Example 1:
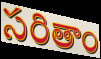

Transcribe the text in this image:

సరితాం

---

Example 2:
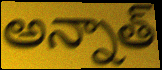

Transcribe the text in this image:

అన్నాత్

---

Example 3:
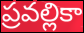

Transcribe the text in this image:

ప్రవల్లికా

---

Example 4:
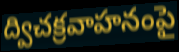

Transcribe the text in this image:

ద్విచక్రవాహనంపై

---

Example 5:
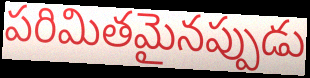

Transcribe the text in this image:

పరిమితమైనప్పుడు